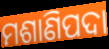
ମଶାଣିପଦା